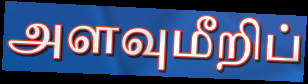
அளவுமீறிப்